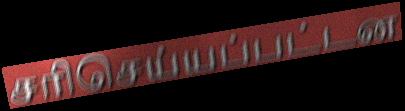
சரிசெய்யப்பட்டன